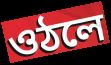
ওঠলে